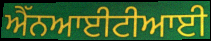
ਐੱਨਆਈਟੀਆਈ